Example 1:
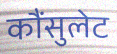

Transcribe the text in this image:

कौंसुलेट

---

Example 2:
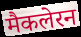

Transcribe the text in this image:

मैकलेरन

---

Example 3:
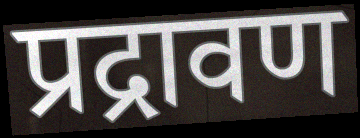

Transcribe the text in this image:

प्रद्रावण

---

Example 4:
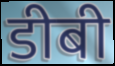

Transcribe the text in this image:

डीबी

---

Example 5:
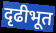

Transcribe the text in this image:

दृढीभूत